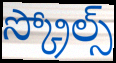
స్క్రోల్స్